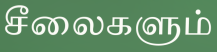
சீலைகளும்